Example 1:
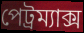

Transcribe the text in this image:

পেট্রম্যাক্স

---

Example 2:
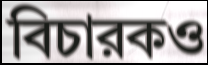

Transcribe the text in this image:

বিচারকও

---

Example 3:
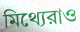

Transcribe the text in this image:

মিথ্যেরাও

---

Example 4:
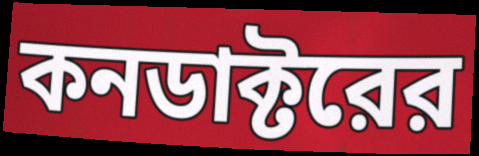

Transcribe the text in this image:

কনডাক্টরের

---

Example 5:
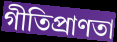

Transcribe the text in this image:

গীতিপ্রাণতা